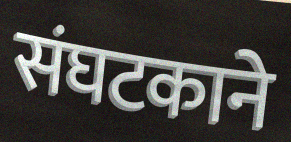
संघटकाने